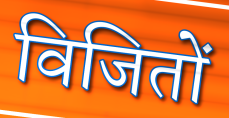
विजितों